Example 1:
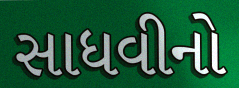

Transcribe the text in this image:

સાધવીનો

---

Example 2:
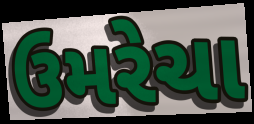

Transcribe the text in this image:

ઉમરેચા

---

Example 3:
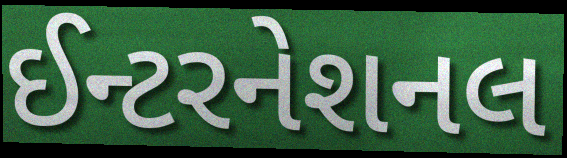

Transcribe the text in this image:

ઈન્ટરનેશનલ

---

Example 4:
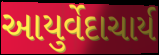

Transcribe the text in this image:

આયુર્વેદાચાર્ય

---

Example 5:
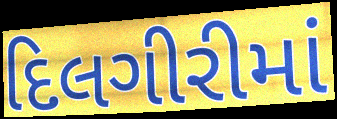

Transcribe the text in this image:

દિલગીરીમાં